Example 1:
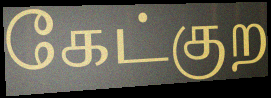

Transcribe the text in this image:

கேட்குற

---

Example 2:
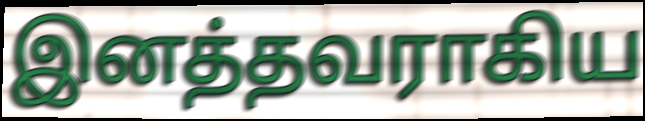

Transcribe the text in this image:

இனத்தவராகிய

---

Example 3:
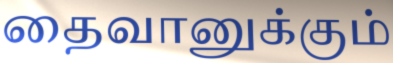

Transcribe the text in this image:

தைவானுக்கும்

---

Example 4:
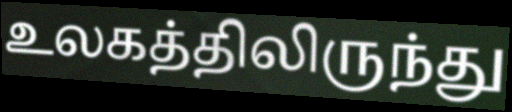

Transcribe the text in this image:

உலகத்திலிருந்து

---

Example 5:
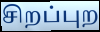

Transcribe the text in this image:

சிறப்புற